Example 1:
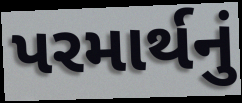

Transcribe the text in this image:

પરમાર્થનું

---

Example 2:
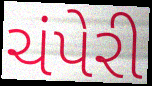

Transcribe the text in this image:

ચંપેરી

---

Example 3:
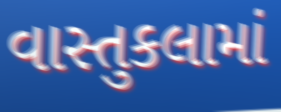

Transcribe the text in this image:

વાસ્તુકલામાં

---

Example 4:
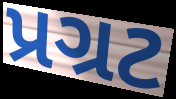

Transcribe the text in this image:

પ્રગ્રટ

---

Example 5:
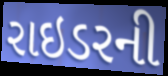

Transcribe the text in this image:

રાઇડરની